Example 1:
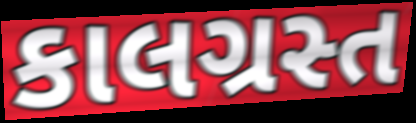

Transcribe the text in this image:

કાલગ્રસ્ત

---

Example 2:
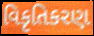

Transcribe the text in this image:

વિકૃતિકરણ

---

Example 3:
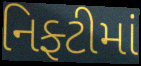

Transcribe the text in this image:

નિફ્ટીમાં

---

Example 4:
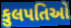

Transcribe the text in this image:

કુલપતિઓ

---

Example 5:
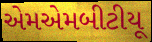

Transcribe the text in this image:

એમએમબીટીયૂ